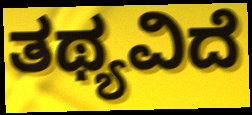
ತಥ್ಯವಿದೆ